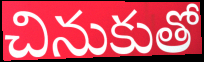
చినుకుతో